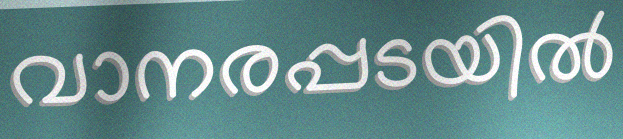
വാനരപ്പടയിൽ